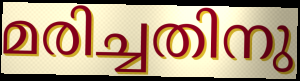
മരിച്ചതിനു